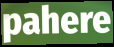
pahere